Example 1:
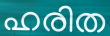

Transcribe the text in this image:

ഹരിത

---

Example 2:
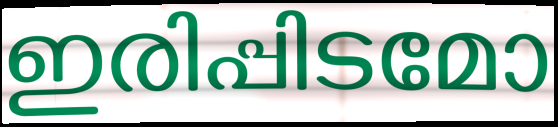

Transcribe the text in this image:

ഇരിപ്പിടമോ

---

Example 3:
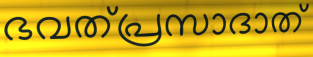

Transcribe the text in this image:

ഭവത്പ്രസാദാത്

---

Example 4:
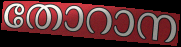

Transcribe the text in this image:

തോറാന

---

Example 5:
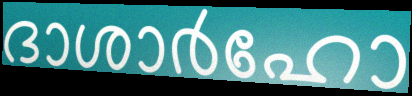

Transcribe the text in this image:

ദാശാർഹോ